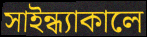
সাইন্ধ্যাকালে